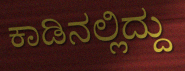
ಕಾಡಿನಲ್ಲಿದ್ದು